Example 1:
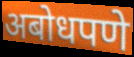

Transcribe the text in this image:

अबोधपणे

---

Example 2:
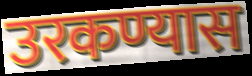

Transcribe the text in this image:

उरकण्यास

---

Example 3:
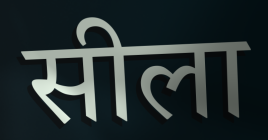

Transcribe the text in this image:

सीला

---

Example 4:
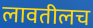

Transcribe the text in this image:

लावतीलच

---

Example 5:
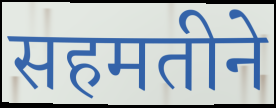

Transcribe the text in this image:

सहमतीने